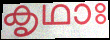
കൃഥാഃ